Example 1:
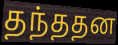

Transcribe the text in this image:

தந்ததன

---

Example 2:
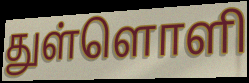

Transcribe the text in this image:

துள்ளொளி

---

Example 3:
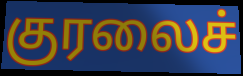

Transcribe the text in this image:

குரலைச்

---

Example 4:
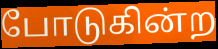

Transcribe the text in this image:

போடுகின்ற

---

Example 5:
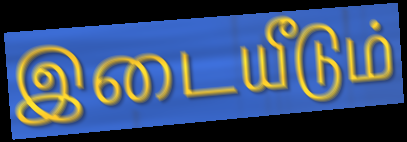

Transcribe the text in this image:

இடையீடும்